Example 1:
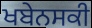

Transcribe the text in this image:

ਖਬੇਨਸਕੀ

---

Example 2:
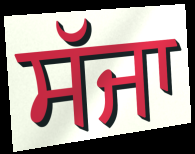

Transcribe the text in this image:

ਸੱਜਾ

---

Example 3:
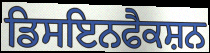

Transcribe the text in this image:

ਡਿਸਇਨਫੈਕਸ਼ਨ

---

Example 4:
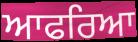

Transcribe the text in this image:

ਆਫਰਿਆ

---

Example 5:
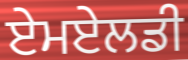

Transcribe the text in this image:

ਏਮਏਲਡੀ